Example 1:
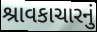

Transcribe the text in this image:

શ્રાવકાચારનું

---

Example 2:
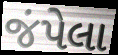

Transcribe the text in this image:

જંપેલા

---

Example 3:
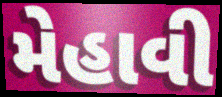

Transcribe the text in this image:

મેહાવી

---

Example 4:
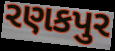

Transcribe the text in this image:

રણકપુર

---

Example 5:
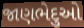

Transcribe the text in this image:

જાણભેદુઓ